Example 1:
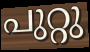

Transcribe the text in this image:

പുറ്റു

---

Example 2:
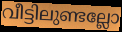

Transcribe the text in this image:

വീട്ടിലുണ്ടല്ലോ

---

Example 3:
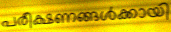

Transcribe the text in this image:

പരീക്ഷണങ്ങൾക്കായി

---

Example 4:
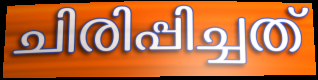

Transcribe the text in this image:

ചിരിപ്പിച്ചത്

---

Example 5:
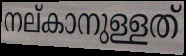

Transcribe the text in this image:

നല്കാനുള്ളത്